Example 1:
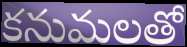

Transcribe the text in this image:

కనుమలతో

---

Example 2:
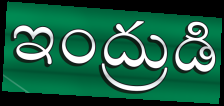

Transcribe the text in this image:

ఇంద్రుడి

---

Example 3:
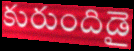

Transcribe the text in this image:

కురుందిడై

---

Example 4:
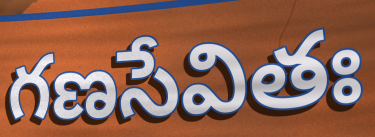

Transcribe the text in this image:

గణసేవితః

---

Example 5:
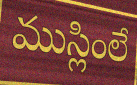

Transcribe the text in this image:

ముస్లింలే